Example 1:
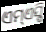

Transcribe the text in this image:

ଏମ୍ଏସ୍ପି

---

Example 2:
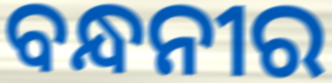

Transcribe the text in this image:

ବନ୍ଧନୀର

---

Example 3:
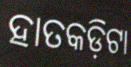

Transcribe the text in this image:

ହାତକଡ଼ିଟା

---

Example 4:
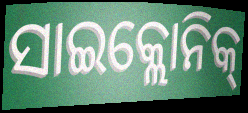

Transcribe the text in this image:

ସାଇକ୍ଲୋନିକ୍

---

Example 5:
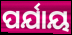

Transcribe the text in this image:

ପର୍ଯାୟ